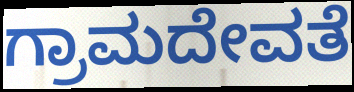
ಗ್ರಾಮದೇವತೆ